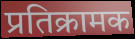
प्रतिक्रामक